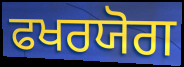
ਫਖਰਯੋਗ